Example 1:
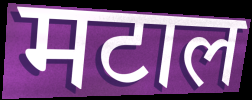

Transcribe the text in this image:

मटाल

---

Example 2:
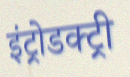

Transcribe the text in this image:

इंट्रोडक्ट्री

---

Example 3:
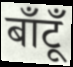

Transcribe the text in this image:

बाँटूँ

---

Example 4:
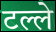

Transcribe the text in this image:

टल्ले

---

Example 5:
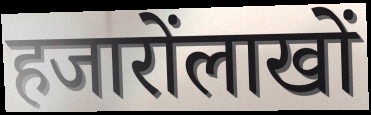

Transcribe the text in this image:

हजारोंलाखों